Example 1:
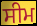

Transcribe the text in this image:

ਸੀਮ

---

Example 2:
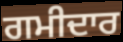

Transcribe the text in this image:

ਗਮੀਦਾਰ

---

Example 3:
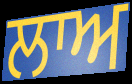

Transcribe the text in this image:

ਲਾਅ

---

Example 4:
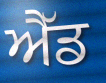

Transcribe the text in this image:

ਐੱਡ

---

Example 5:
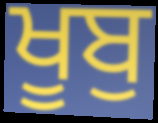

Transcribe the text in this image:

ਖੂਬੁ